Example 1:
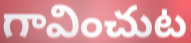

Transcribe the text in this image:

గావించుట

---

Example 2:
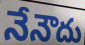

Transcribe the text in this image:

నేనౌదు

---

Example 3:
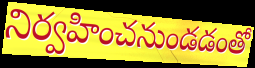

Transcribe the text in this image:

నిర్వహించనుండడంతో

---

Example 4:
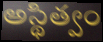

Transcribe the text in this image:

అస్థిత్వం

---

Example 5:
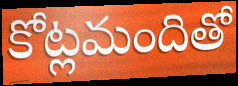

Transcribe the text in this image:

కోట్లమందితో